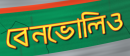
বেনভোলিও